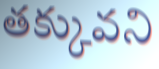
తక్కువని